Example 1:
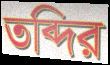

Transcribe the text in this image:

তব্দির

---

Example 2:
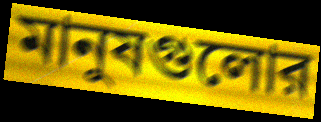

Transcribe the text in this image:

মানুষগুলোর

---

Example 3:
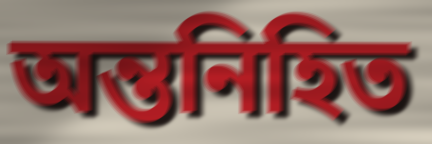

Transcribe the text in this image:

অন্তনিহিত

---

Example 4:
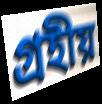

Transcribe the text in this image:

গ্রহীয়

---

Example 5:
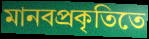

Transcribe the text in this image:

মানবপ্রকৃতিতে